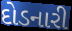
દોડનારી